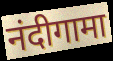
नंदीगामा